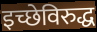
इच्छेविरुद्ध